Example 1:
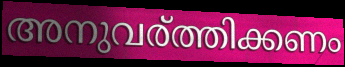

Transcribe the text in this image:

അനുവര്ത്തിക്കണം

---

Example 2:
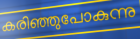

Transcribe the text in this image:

കരിഞ്ഞുപോകുന്നു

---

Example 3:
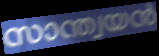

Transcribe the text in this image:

സാന്ത്വയൻ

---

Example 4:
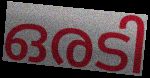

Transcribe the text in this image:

ഒരടി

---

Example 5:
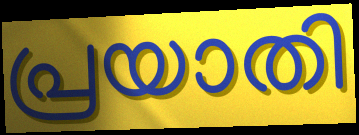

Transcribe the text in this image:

പ്രയാതി